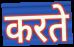
करते